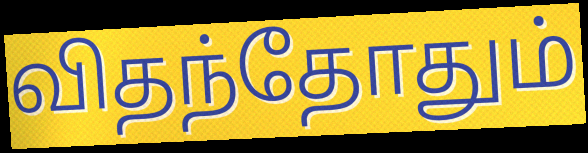
விதந்தோதும்